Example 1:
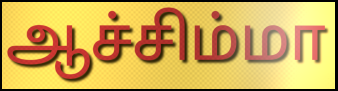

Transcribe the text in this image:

ஆச்சிம்மா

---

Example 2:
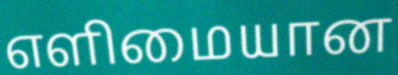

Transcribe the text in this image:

எளிமையான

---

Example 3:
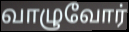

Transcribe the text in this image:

வாழுவோர்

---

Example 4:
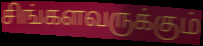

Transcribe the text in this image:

சிங்களவருக்கும்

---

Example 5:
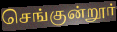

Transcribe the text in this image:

செங்குன்றூர்